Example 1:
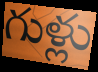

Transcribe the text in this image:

గుళ్లు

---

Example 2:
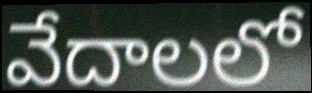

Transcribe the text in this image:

వేదాలలో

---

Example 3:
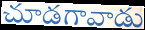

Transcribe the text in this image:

చూడగావాడు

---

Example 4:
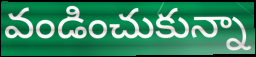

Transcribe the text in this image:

వండించుకున్నా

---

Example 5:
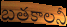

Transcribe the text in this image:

బతకాలనీ